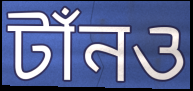
টাঁনও